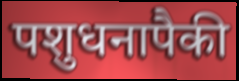
पशुधनापैकी